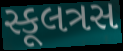
સ્કૂલત્રસ